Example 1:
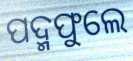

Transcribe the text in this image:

ପଦ୍ମଫୁଲେ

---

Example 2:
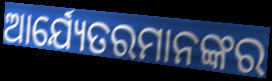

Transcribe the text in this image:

ଆର୍ଯ୍ୟେତରମାନଙ୍କର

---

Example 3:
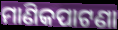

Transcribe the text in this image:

ମାଣିକପାଟଣା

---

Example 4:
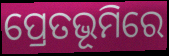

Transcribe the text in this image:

ପ୍ରେତଭୂମିରେ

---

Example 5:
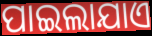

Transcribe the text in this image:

ପାଇଲାଯାଏ